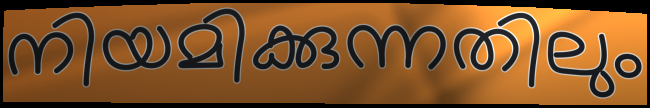
നിയമിക്കുന്നതിലും